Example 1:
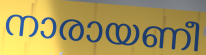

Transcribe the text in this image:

നാരായണീ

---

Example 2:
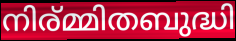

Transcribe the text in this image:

നിര്മ്മിതബുദ്ധി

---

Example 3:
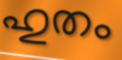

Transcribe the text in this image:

ഹുതം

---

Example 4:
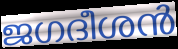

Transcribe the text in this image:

ജഗദീശൻ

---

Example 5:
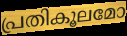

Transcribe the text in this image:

പ്രതികൂലമോ